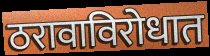
ठरावाविरोधात